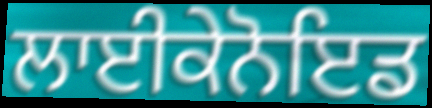
ਲਾਈਕੇਨੋਇਡ